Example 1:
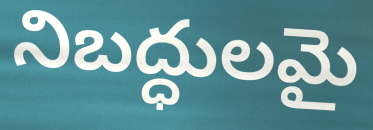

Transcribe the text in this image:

నిబద్ధులమై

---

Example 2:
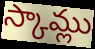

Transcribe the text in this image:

స్కామ్లు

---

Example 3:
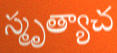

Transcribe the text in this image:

స్మృత్యాచ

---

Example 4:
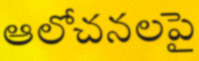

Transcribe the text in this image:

ఆలోచనలపై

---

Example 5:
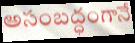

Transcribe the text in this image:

అసంబద్ధంగానే